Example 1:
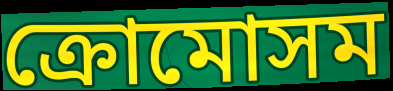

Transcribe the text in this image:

ক্রোমোসম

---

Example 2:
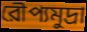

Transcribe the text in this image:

রৌপ্যমুদ্রা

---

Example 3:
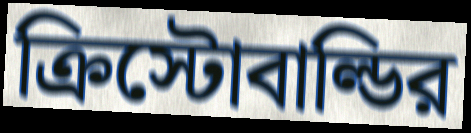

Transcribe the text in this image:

ক্রিস্টোবাল্ডির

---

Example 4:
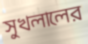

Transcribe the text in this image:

সুখলালের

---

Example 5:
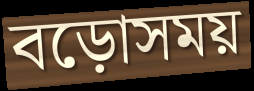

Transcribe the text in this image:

বড়োসময়